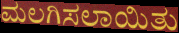
ಮಲಗಿಸಲಾಯಿತು